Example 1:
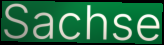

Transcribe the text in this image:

Sachse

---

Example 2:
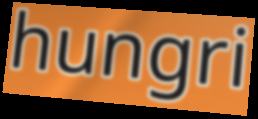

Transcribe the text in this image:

hungri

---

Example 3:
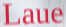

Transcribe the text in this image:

Laue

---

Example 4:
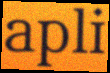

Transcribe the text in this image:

apli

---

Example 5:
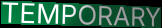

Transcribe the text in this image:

TEMPORARY